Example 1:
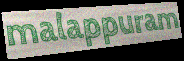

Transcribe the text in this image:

malappuram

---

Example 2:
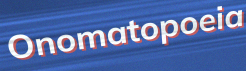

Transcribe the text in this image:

Onomatopoeia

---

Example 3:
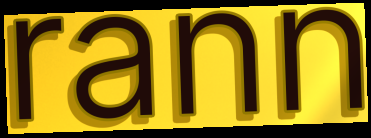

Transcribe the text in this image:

rann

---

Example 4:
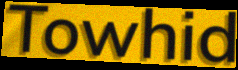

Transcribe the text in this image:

Towhid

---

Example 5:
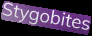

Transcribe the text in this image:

Stygobites